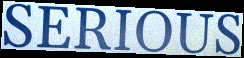
SERIOUS